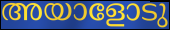
അയാളോടു